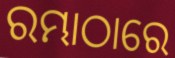
ରମ୍ଭାଠାରେ